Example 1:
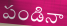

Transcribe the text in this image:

పండినా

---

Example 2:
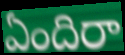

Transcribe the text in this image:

ఏందిరా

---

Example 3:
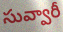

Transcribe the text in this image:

సువ్వారీ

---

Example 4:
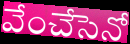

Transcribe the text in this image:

వేంచేసెనో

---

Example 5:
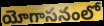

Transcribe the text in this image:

యోగాసనంలో